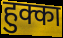
हुक्का